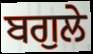
ਬਗੁਲੇ